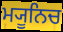
ਮ੍ਯੂਨਿਚ